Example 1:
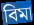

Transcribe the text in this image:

বিমা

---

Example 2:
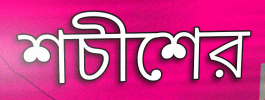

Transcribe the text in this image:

শচীশের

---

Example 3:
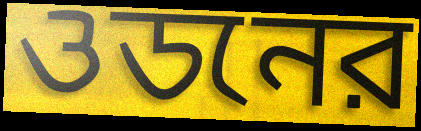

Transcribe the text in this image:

ওডনের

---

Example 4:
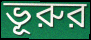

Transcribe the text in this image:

ভূরুর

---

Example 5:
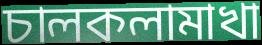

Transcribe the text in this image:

চালকলামাখা